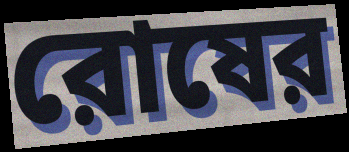
রোষের